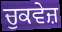
ਚੁਕਵੇਜ਼